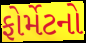
ફોર્મેટનો